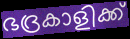
ഭദ്രകാളിക്ക്